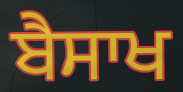
ਬੈਸਾਖ